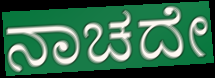
ನಾಚದೇ